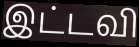
இட்டவி